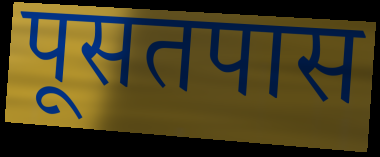
पूसतपास